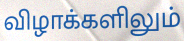
விழாக்களிலும்